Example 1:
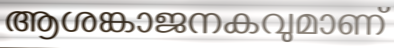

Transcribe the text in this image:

ആശങ്കാജനകവുമാണ്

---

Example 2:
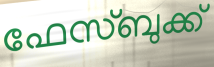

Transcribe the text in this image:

ഫേസ്ബുക്ക്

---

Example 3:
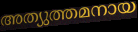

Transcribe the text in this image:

അത്യുത്തമനായ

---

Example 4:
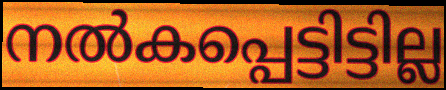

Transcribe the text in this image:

നൽകപ്പെട്ടിട്ടില്ല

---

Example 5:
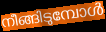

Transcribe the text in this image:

നീങ്ങിടുമ്പോൾ